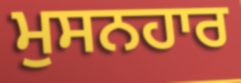
ਮੁਸਨਹਾਰ